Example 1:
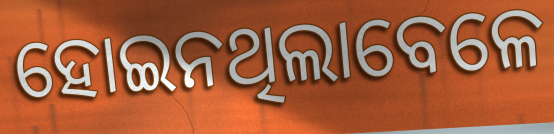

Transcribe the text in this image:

ହୋଇନଥିଲାବେଳେ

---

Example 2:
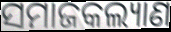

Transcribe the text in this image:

ସମାଜକଲ୍ୟାଣ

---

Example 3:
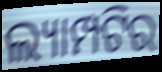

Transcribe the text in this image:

ଲ୍ୟାମ୍ପଟିର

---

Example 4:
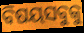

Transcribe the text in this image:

ବିଷୟସବୁକୁ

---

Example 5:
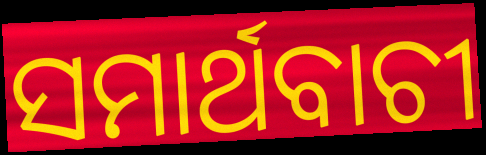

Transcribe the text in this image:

ସମାର୍ଥବାଚୀ